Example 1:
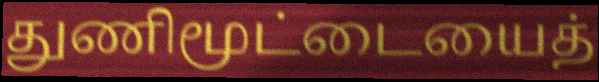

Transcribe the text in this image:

துணிமூட்டையைத்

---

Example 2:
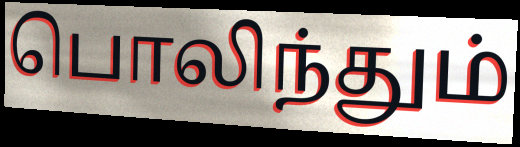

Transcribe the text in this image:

பொலிந்தும்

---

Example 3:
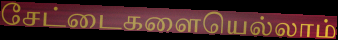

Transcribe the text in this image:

சேட்டைகளையெல்லாம்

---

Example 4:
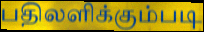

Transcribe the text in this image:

பதிலளிக்கும்படி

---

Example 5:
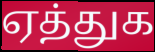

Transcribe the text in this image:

ஏத்துக